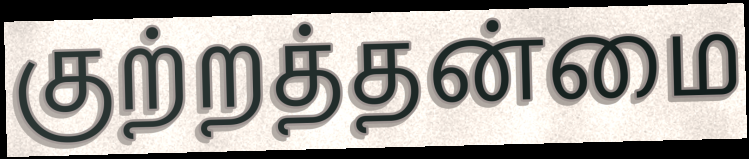
குற்றத்தன்மை